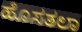
ಹೊಸತಲಾ